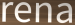
rena